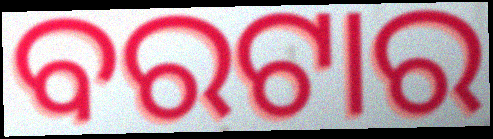
ବରଟାର